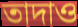
তাদাও